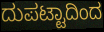
ದುಪಟ್ಟಾದಿಂದ